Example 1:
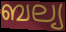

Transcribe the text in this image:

ബല്യ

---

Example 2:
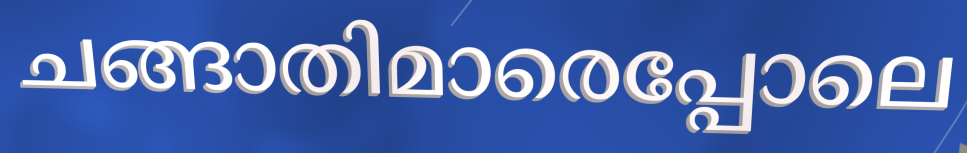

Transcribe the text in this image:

ചങ്ങാതിമാരെപ്പോലെ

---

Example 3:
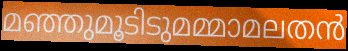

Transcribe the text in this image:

മഞ്ഞുമൂടിടുമമ്മാമലതൻ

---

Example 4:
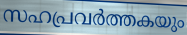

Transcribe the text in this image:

സഹപ്രവർത്തകയും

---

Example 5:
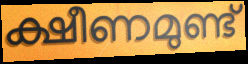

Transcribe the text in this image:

ക്ഷീണമുണ്ട്